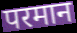
परमान